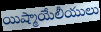
యిష్మాయేలీయులు